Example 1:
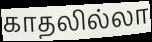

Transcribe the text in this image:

காதலில்லா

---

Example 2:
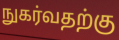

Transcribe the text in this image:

நுகர்வதற்கு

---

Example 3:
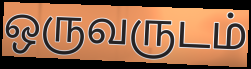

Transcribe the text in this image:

ஒருவருடம்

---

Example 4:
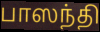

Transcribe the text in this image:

பாஸந்தி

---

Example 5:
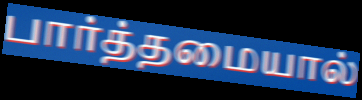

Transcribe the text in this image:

பார்த்தமையால்